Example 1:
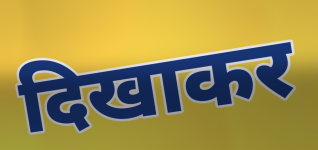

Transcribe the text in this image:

दिखाकर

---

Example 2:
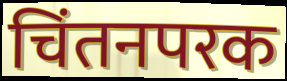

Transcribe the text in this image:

चिंतनपरक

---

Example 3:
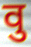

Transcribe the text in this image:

वु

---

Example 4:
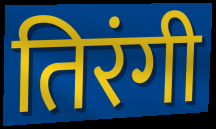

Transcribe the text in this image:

तिरंगी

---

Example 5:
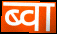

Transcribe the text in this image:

ब्वा